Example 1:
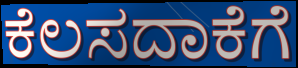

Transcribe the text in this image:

ಕೆಲಸದಾಕೆಗೆ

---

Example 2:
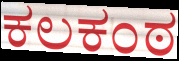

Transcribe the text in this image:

ಕಲಕಂಠ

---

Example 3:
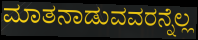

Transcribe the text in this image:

ಮಾತನಾಡುವವರನ್ನೆಲ್ಲ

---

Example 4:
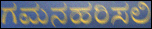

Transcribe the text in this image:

ಗಮನಹರಿಸಲಿ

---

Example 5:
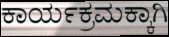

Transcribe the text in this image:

ಕಾರ್ಯಕ್ರಮಕ್ಕಾಗಿ